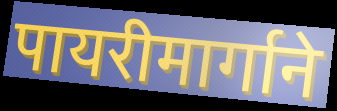
पायरीमार्गाने